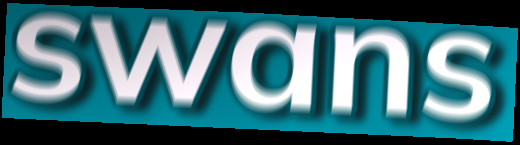
swans